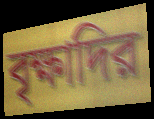
বৃক্ষাদির